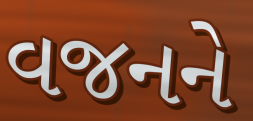
વજનને